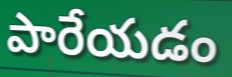
పారేయడం